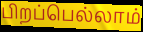
பிறப்பெல்லாம்